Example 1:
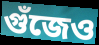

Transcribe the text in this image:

গুঁজেও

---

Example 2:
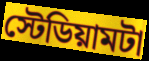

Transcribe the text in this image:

স্টেডিয়ামটা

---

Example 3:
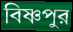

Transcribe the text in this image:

বিষ্ণপুর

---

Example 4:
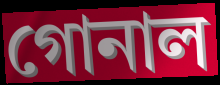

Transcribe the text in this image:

গোনাল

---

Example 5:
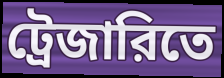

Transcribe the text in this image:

ট্রেজারিতে